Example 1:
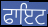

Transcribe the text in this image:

ਫਾਇਟ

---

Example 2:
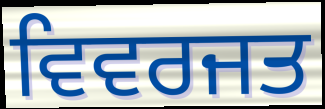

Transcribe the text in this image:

ਵਿਵਰਜਤ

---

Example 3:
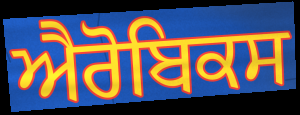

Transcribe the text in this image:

ਐਰੋਬਿਕਸ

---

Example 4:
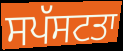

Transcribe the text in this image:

ਸਪੱਸਟਤਾ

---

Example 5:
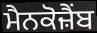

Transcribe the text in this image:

ਮੈਨਕੋਜ਼ੈਂਬ